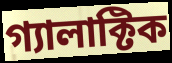
গ্যালাক্টিক